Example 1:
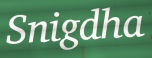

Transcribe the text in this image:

Snigdha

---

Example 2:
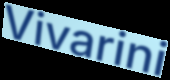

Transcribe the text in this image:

Vivarini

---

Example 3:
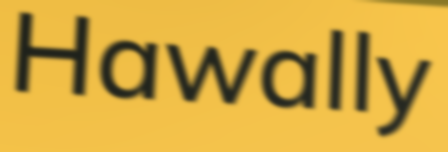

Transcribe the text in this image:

Hawally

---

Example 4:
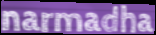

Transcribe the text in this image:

narmadha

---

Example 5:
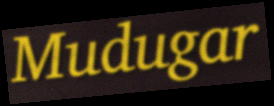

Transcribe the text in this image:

Mudugar